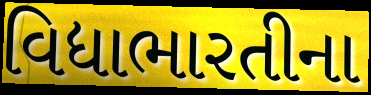
વિદ્યાભારતીના